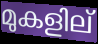
മുകളില്